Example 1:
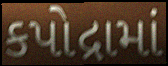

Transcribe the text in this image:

કપોદ્રામાં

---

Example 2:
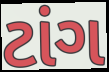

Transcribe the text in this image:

ટાંગ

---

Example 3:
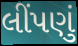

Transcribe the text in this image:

લીંપણું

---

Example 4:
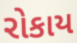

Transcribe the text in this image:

રોકાય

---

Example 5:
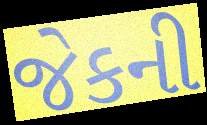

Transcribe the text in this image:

જેકની